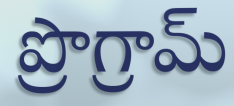
ప్రొగ్రామ్